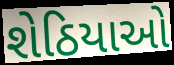
શેઠિયાઓ